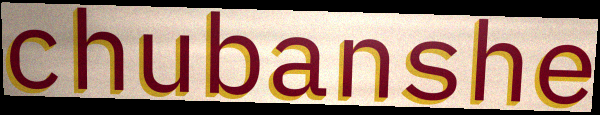
chubanshe